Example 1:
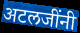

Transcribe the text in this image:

अटलजींनी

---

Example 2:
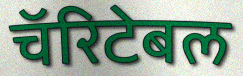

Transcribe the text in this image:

चॅरिटेबल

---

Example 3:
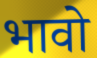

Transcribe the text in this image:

भावो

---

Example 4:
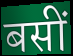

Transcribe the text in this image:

बसीं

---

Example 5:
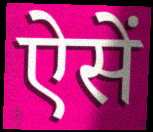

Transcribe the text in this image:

ऐसें